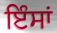
ਇੰਸਾਂ